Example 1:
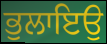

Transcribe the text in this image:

ਭੁਲਾਇਉ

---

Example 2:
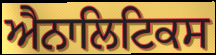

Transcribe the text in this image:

ਐਨਾਲਿਟਿਕਸ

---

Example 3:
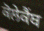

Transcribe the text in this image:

ਕੋਲੇਕੈਂਥ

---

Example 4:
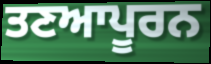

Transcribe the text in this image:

ਤਣਆਪੂਰਨ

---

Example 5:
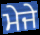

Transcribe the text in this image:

ਮੇਜੇ